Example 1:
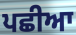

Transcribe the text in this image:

ਪਛੀਆ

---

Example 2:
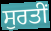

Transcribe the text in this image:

ਸੁਰਤੀਂ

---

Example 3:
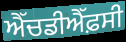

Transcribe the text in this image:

ਐੱਚਡੀਐੱਫ਼ਸੀ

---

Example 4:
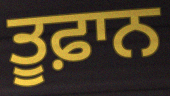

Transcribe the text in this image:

ਤੂਫ਼ਾਨ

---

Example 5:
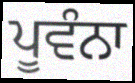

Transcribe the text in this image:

ਪੂਵੰਨਾ